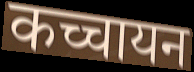
कच्चायन